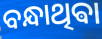
ବନ୍ଧାଥିଵା